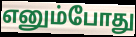
எனும்போது